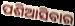
ପଶିଆସିବାର